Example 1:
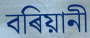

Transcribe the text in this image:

বৰিয়ানী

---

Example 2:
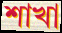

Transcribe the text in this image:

শাখা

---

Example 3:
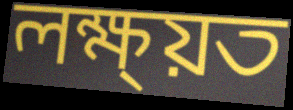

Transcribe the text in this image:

লক্ষ্য়ত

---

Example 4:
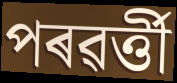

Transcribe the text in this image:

পৰৱৰ্ত্তী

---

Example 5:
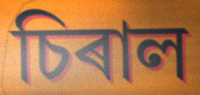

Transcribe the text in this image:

চিৰাল